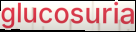
glucosuria